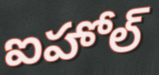
ఐహోల్